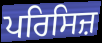
ਪਰਿਸਿਜ਼